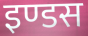
इण्डस